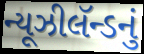
ન્યૂઝીલૅન્ડનું